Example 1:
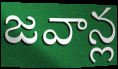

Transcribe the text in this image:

జవాన్ల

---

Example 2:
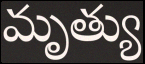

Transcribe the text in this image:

మృత్యు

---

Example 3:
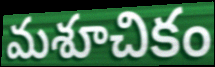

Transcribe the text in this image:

మశూచికం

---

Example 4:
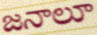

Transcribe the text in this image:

జనాలూ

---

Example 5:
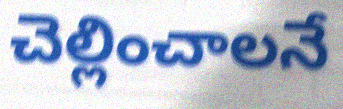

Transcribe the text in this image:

చెల్లించాలనే